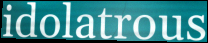
idolatrous